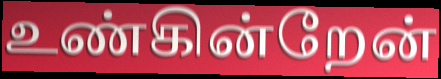
உண்கின்றேன்